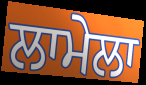
ਲਾਮੇਲਾ